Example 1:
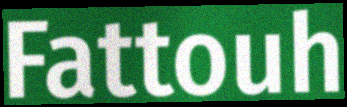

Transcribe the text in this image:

Fattouh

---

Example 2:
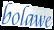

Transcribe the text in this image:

bolawe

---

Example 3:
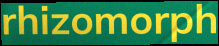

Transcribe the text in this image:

rhizomorph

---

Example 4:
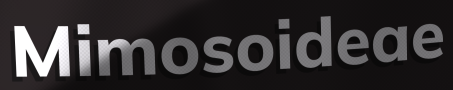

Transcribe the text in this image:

Mimosoideae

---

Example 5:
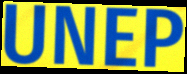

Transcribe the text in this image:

UNEP